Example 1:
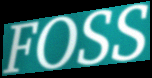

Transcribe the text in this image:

FOSS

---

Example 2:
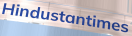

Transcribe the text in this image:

Hindustantimes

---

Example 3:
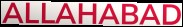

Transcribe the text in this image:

ALLAHABAD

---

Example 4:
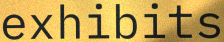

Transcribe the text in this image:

exhibits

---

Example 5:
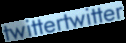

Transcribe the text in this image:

twittertwitter